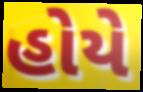
હોયે